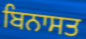
ਬਿਨਾਸਤ